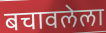
बचावलेला